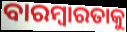
ବାରମ୍ବାରତାକୁ